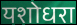
यशोधरा